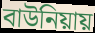
বাউনিয়ায়